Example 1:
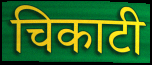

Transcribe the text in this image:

चिकाटी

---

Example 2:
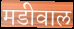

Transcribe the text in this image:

मडीवाल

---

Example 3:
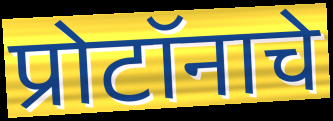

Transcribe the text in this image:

प्रोटॉनाचे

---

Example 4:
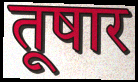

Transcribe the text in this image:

तूषार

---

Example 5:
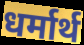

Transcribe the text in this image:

धर्मार्थ